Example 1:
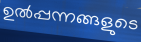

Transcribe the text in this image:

ഉൽപ്പന്നങ്ങളുടെ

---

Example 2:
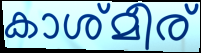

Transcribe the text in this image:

കാശ്മീര്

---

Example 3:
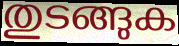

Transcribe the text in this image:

തുടങ്ങുക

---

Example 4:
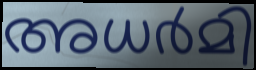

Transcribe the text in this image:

അധർമി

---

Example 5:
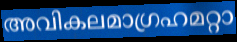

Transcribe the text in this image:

അവികലമാഗ്രഹമറ്റാ